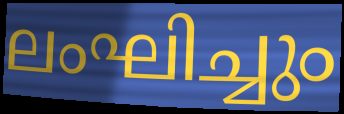
ലംഘിച്ചും